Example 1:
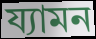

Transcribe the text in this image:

য্যামন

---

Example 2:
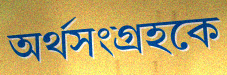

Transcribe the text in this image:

অর্থসংগ্রহকে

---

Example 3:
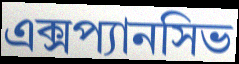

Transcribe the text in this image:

এক্সপ্যানসিভ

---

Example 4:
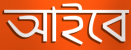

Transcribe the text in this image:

আইবে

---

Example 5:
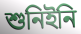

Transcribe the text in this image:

শুনিইনি